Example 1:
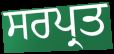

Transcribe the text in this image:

ਸਰਪ੍ਰਤ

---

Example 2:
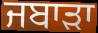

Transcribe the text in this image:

ਜਬਾੜਾ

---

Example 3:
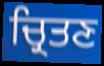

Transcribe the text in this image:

ਚ੍ਰਿਤਣ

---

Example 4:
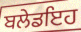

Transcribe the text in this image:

ਬਲੇਡਇਹ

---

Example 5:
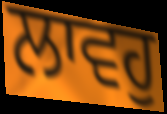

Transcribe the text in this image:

ਲਾਵਹੁ